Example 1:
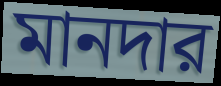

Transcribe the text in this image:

মানদার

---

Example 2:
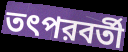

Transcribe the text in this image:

তৎপরবর্তী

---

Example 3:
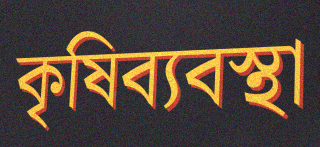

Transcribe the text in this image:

কৃষিব্যবস্থা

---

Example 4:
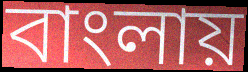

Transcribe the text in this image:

বাংলায়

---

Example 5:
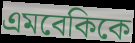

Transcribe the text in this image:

এমবেকিকে